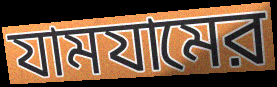
যামযামের